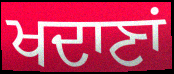
ਖਦਾਣਾਂ